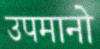
उपमानो